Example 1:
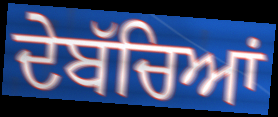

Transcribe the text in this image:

ਦੇਬੱਚਿਆਂ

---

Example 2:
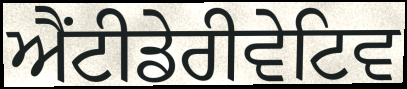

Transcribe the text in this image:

ਐਂਟੀਡੇਰੀਵੇਟਿਵ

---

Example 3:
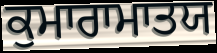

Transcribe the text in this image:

ਕੁਮਾਰਾਮਾਤਯ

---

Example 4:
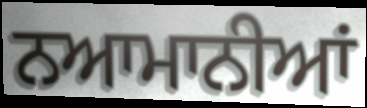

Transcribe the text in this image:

ਨਆਮਾਨੀਆਂ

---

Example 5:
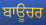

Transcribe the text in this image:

ਬਾਊਚਰ